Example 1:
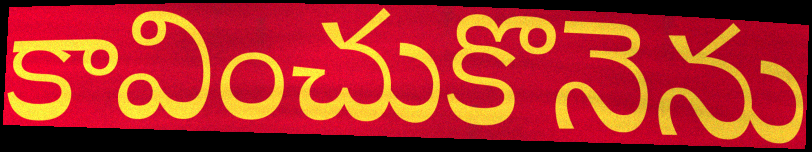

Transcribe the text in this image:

కావించుకొనెను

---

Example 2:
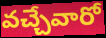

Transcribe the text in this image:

వచ్చేవారో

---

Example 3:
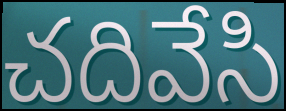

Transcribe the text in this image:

చదివేసి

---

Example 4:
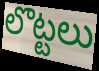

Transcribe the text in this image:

లొట్టలు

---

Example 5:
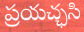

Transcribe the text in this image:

ప్రయచ్ఛసి